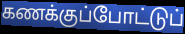
கணக்குப்போட்டுப்